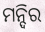
ମନ୍ଦିର